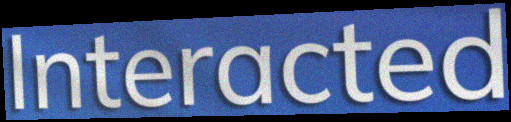
Interacted